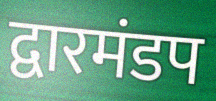
द्वारमंडप